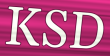
KSD